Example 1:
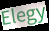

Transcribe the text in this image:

Elegy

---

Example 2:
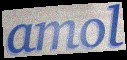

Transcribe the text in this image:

amol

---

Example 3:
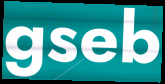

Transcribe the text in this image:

gseb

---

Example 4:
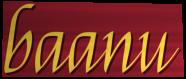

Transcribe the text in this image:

baanu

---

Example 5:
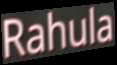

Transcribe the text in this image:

Rahula